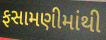
ફસામણીમાંથી